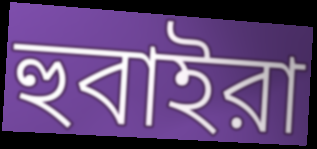
হুবাইরা